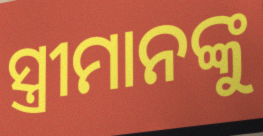
ସ୍ତ୍ରୀମାନଙ୍କୁ